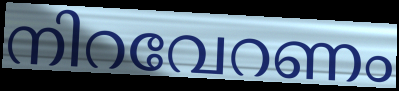
നിറവേറണം